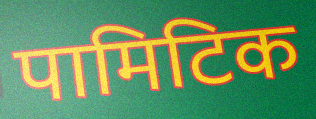
पामिटिक